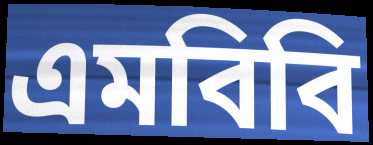
এমবিবি